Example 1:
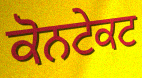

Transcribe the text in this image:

ਕੋਨਟੇਕਟ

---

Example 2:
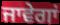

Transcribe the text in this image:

ਜਾਵੇਗਾਂ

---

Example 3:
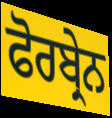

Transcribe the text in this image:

ਫੋਰਬ੍ਰੇਨ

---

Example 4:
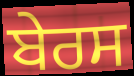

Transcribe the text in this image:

ਬੇਰਸ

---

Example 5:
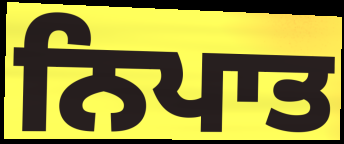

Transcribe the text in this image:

ਨਿਪਾਤ